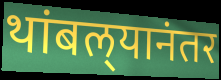
थांबल्यानंतर